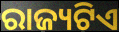
ରାଜ୍ୟଟିଏ